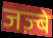
जज़्बे